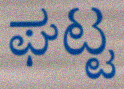
ಘಟ್ಟ